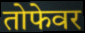
तोफेवर